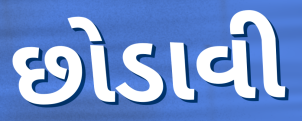
છોડાવી